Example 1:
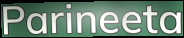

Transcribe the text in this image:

Parineeta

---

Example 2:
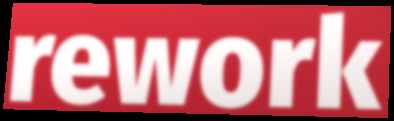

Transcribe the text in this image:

rework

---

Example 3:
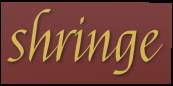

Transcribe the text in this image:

shringe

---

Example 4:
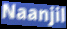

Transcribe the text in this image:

Naanjil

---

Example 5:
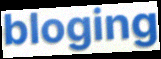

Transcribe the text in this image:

bloging